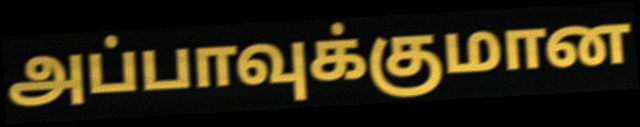
அப்பாவுக்குமான